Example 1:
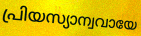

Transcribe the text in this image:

പ്രിയസ്യാന്വവായേ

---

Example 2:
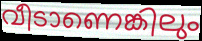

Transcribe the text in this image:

വീടാണെങ്കിലും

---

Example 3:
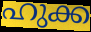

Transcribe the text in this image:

ഹുക്ക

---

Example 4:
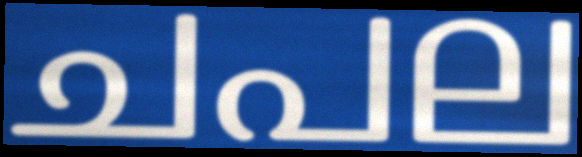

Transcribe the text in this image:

ചപല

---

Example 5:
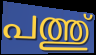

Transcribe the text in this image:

പത്തു്